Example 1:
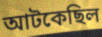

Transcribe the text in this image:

আটকেছিল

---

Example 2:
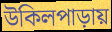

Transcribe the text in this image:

উকিলপাড়ায়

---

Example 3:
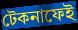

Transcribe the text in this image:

টেকনাফেই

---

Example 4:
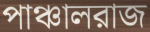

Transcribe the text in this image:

পাঞ্চালরাজ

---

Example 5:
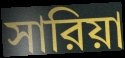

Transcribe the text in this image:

সারিয়া